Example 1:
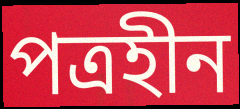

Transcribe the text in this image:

পত্রহীন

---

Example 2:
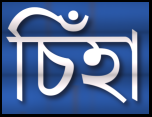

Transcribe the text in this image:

চিঁহা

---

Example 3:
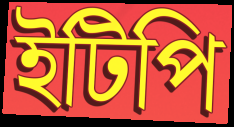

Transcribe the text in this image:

ইটিপি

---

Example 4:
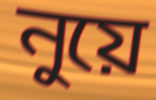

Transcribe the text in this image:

নুয়ে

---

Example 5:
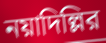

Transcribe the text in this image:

নয়াদিল্লির